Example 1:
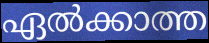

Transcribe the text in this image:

ഏൽക്കാത്ത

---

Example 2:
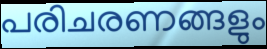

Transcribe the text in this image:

പരിചരണങ്ങളും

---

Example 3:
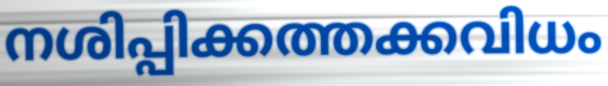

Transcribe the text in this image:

നശിപ്പിക്കത്തക്കവിധം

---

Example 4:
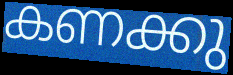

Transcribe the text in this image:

കണക്കു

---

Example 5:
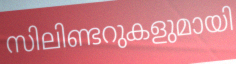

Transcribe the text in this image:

സിലിണ്ടറുകളുമായി